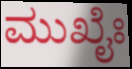
ಮುಖೈಃ